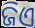
ଜିଏ